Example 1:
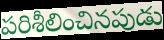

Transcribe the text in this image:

పరిశీలించినపుడు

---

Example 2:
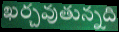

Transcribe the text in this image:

ఖర్చవుతున్నది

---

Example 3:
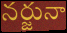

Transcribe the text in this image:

నర్జునా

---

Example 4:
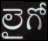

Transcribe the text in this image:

లైగో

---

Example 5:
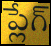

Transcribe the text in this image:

ప్లేగ్